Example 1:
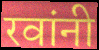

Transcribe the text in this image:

रवांनी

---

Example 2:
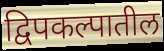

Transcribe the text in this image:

द्विपकल्पातील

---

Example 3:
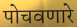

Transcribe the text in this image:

पोचवणारे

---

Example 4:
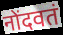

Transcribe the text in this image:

नोंदवतं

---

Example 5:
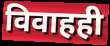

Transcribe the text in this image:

विवाहही